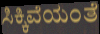
ಸಿಕ್ಕಿವೆಯಂತೆ